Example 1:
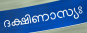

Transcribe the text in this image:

ദക്ഷിണാസ്യഃ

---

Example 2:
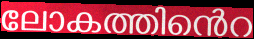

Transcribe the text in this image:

ലോകത്തിൻെറ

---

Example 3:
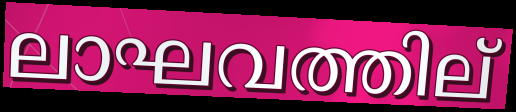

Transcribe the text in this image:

ലാഘവത്തില്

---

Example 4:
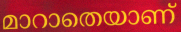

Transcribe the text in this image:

മാറാതെയാണ്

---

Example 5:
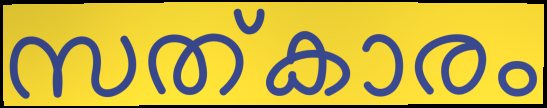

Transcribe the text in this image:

സത്കാരം